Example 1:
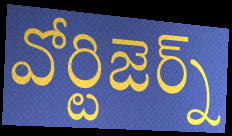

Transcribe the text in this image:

వోర్టిజెర్న్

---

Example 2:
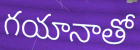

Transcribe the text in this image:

గయానాతో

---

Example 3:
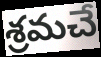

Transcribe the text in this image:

శ్రమచే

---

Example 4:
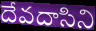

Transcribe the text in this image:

దేవదాసిని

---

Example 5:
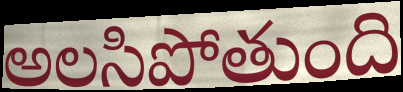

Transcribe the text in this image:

అలసిపోతుంది